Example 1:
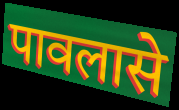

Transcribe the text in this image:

पावलासे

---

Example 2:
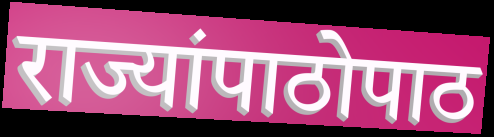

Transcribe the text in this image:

राज्यांपाठोपाठ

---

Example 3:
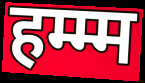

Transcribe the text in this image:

हम्म्म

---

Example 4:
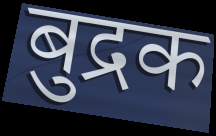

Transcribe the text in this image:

बुद्रक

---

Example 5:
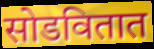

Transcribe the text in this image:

सोडवितात